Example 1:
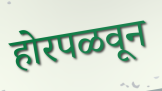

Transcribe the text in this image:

होरपळवून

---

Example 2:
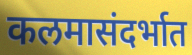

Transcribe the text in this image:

कलमासंदर्भात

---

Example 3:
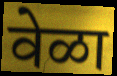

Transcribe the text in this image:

वेळा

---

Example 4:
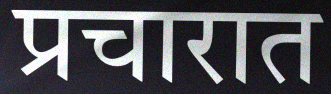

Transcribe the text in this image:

प्रचारात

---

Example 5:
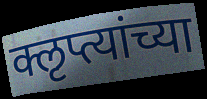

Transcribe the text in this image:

क्लृप्त्यांच्या